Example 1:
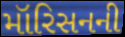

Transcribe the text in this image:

મૉરિસનની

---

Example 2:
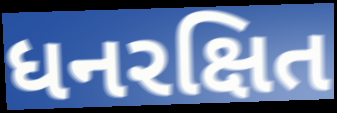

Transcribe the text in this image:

ધનરક્ષિત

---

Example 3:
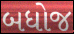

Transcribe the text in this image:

બધોજ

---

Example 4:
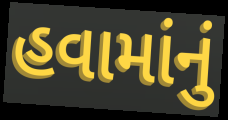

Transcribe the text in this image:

હવામાંનું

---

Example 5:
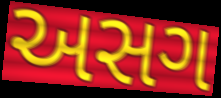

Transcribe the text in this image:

અસગ